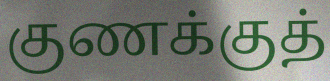
குணக்குத்